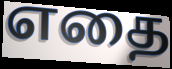
எதை